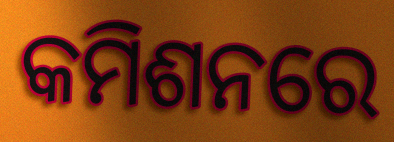
କମିଶନରେ